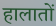
हालातों